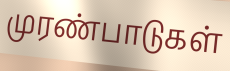
முரண்பாடுகள்